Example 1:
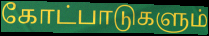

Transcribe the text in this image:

கோட்பாடுகளும்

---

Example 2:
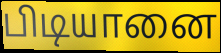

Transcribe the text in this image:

பிடியானை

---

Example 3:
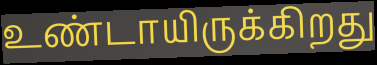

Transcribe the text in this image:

உண்டாயிருக்கிறது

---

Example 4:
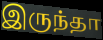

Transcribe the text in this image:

இருந்தா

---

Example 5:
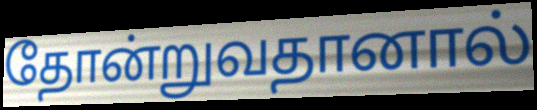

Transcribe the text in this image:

தோன்றுவதானால்